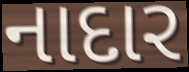
નાદાર